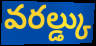
వరల్డ్కు